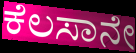
ಕೆಲಸಾನೇ